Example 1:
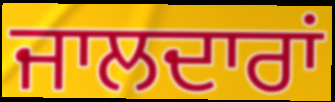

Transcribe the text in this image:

ਜਾਲਦਾਰਾਂ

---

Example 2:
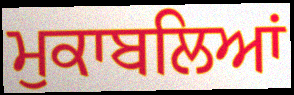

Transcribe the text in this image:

ਮੁਕਾਬਲਿਆਂ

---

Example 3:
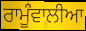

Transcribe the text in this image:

ਰਾਮੂੰਵਾਲੀਆ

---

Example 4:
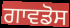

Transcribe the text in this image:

ਗਾਵਡੋਸ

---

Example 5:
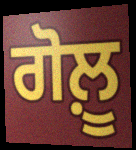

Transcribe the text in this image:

ਗੋਲ਼ੂ